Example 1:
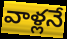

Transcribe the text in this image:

వాళ్లనే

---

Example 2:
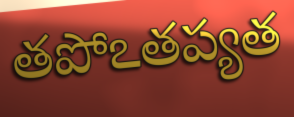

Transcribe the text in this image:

తపోఽతప్యత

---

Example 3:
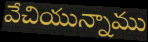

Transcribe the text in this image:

వేచియున్నాము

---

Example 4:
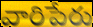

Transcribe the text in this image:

వారిపేరు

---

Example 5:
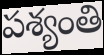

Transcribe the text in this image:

పశ్యంతి